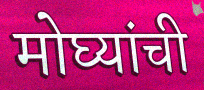
मोघ्यांची